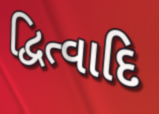
દ્વિત્વાદિ